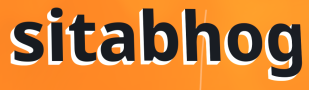
sitabhog